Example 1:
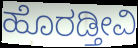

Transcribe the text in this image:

ಹೊರಡ್ತೀವಿ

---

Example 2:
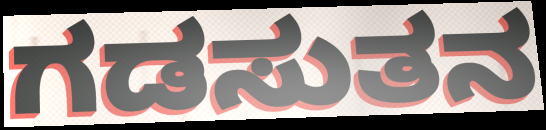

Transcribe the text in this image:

ಗಡಸುತನ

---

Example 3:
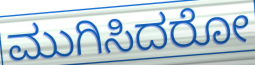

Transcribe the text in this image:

ಮುಗಿಸಿದರೋ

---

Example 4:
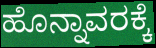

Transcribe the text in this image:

ಹೊನ್ನಾವರಕ್ಕೆ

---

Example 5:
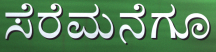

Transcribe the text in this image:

ಸೆರೆಮನೆಗೂ